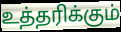
உத்தரிக்கும்